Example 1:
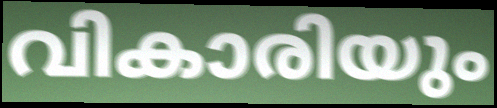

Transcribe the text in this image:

വികാരിയും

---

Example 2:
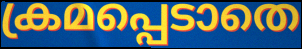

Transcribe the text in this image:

ക്രമപ്പെടാതെ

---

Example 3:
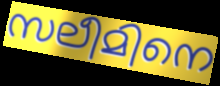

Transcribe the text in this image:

സലീമിനെ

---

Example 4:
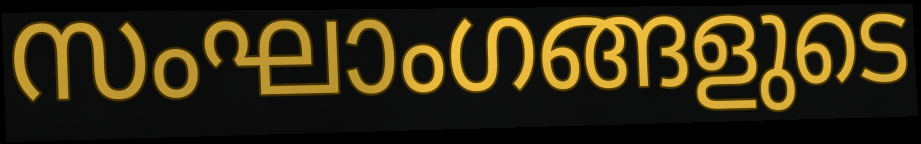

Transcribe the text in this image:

സംഘാംഗങ്ങളുടെ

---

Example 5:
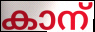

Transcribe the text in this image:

കാന്